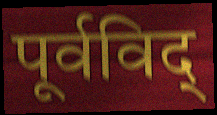
पूर्वविद्